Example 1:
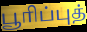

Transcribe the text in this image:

பூரிப்புத்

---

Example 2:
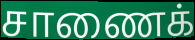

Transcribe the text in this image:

சாணைக்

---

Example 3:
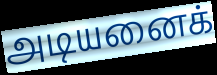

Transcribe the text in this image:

அடியனைக்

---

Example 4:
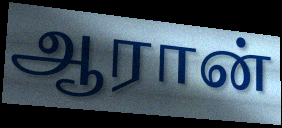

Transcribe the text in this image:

ஆரான்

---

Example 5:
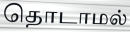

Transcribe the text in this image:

தொடாமல்